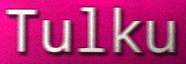
Tulku